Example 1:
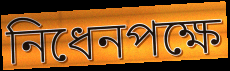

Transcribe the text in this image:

নিধেনপক্ষে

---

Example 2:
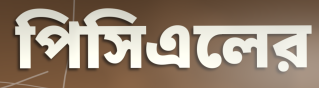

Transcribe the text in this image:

পিসিএলের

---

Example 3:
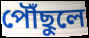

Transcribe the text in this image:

পৌঁছুলে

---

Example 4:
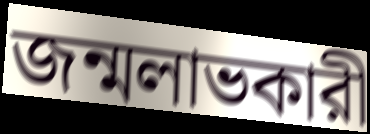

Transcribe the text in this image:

জন্মলাভকারী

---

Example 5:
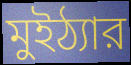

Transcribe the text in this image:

মুইঠ্যার